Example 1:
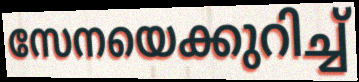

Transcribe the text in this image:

സേനയെക്കുറിച്ച്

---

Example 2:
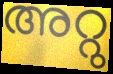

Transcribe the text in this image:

അറ്റു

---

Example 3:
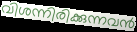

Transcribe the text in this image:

വിശന്നിരിക്കുന്നവൻ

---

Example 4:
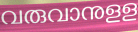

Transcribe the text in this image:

വരുവാനുളള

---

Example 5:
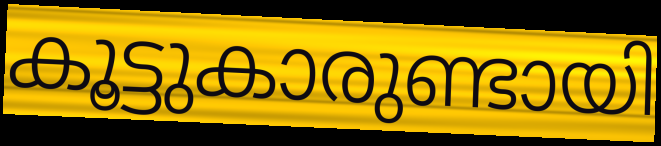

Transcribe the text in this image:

കൂട്ടുകാരുണ്ടായി